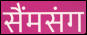
सैंमसंग